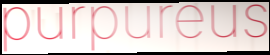
purpureus